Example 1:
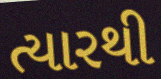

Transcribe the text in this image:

ત્યારથી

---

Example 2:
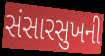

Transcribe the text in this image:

સંસારસુખની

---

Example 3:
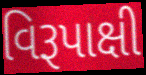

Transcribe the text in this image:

વિરૂપાક્ષી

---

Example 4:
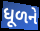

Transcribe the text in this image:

ધૂળને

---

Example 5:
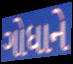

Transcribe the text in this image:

ગોધાને